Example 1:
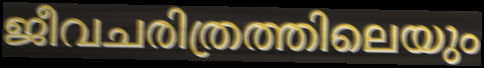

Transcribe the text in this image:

ജീവചരിത്രത്തിലെയും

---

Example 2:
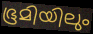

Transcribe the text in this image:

ഭൂമിയിലും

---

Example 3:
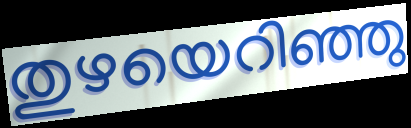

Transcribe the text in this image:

തുഴയെറിഞ്ഞു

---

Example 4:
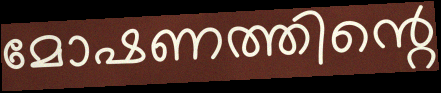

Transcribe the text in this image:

മോഷണത്തിന്റെ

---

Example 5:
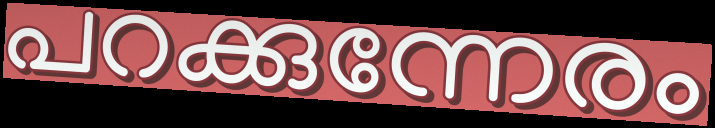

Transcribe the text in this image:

പറക്കുന്നേരം